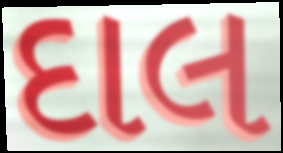
દાલ